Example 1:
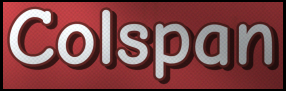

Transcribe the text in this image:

Colspan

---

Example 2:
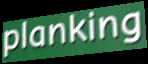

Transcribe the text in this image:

planking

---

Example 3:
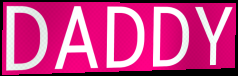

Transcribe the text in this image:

DADDY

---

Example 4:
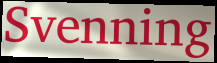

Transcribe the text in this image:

Svenning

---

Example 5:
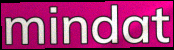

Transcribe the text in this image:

mindat